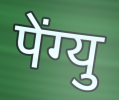
पेंग्यु